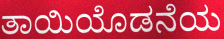
ತಾಯಿಯೊಡನೆಯ